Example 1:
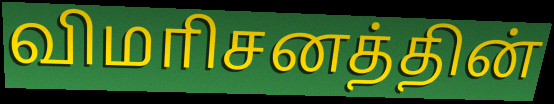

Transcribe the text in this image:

விமரிசனத்தின்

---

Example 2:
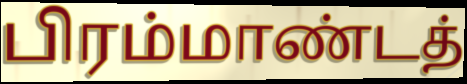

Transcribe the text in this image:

பிரம்மாண்டத்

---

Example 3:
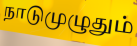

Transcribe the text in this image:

நாடுமுழுதும்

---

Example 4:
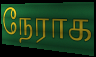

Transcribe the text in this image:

நேராக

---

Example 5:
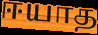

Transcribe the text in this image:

ஈயாத